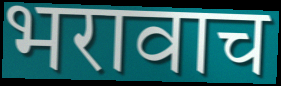
भरावाच